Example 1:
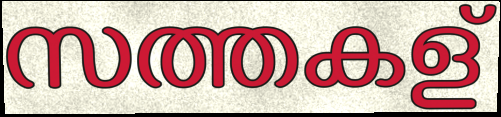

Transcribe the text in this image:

സത്തകള്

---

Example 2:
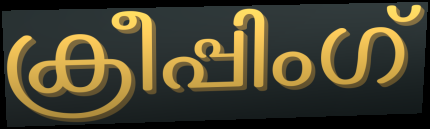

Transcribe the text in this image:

ക്രീപ്പിംഗ്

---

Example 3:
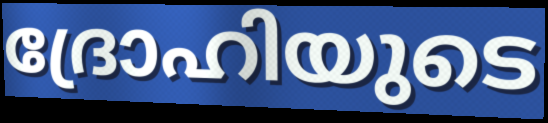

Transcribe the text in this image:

ദ്രോഹിയുടെ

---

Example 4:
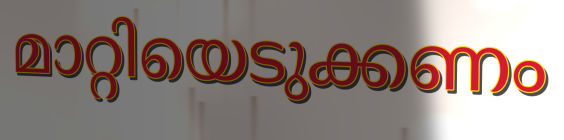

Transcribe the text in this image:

മാറ്റിയെടുക്കണം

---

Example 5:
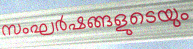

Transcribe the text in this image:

സംഘർഷങ്ങളുടെയും